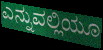
ಎನ್ನುವಲ್ಲಿಯೂ